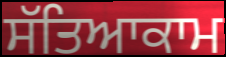
ਸੱਤਿਆਕਾਮ